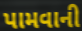
પામવાની